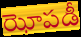
ఝోపడీ